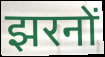
झरनों